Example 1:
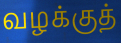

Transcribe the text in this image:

வழக்குத்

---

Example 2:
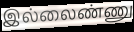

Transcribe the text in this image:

இல்லைண்ணு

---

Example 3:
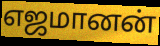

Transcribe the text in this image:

எஜமானன்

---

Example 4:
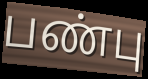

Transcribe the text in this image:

பண்பு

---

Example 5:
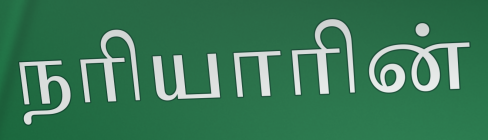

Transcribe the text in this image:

நரியாரின்